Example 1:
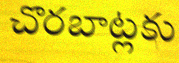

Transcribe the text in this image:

చొరబాట్లకు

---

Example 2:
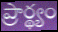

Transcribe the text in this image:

ప్రార్థ్యం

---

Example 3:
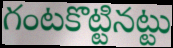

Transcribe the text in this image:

గంటకొట్టినట్టు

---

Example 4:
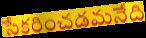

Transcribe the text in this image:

సేకరించడమనేది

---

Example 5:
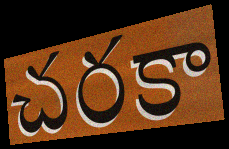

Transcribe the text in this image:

చరకా